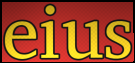
eius